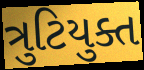
ત્રુટિયુક્ત